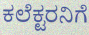
ಕಲೆಕ್ಟರನಿಗೆ